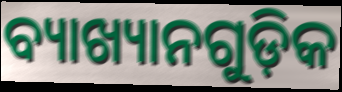
ବ୍ୟାଖ୍ୟାନଗୁଡ଼ିକ